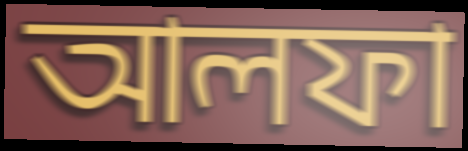
আলফা